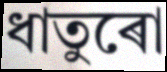
ধাতুৰো